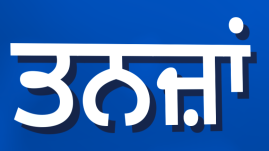
ਤਨਜ਼ਾਂ